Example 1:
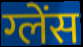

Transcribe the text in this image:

ग्लेंस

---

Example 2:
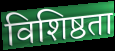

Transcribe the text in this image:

विशिष्ठता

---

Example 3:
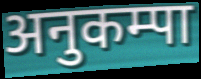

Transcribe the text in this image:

अनुकम्पा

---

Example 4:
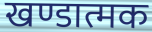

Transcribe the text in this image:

खण्डात्मक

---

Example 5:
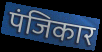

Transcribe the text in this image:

पंजिकार